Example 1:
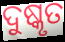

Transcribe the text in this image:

ଦୁଷ୍କୃତ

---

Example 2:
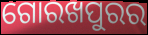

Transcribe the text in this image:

ଗୋରଖପୁରର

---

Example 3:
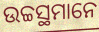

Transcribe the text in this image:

ଉଚ୍ଚସ୍ଥମାନେ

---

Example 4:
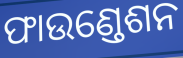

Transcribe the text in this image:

ଫାଉଣ୍ଡେଶନ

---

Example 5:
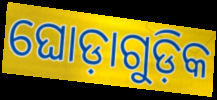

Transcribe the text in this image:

ଘୋଡ଼ାଗୁଡ଼ିକ